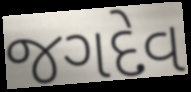
જગદેવ